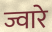
ज्वारे